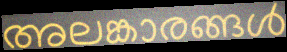
അലങ്കാരങ്ങൾ